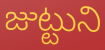
జుట్టుని